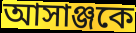
আসাঞ্জকে